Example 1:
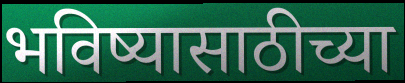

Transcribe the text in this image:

भविष्यासाठीच्या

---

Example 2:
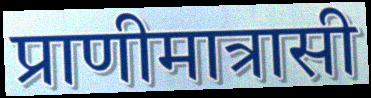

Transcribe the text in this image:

प्राणीमात्रासी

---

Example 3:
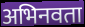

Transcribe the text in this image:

अभिनवता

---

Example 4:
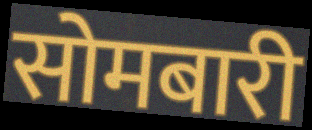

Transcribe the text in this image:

सोमबारी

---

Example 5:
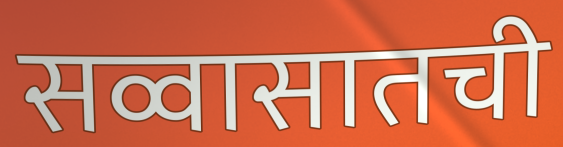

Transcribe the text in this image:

सव्वासातची